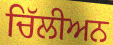
ਚਿੱਲੀਅਨ